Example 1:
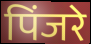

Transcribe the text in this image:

पिंजरे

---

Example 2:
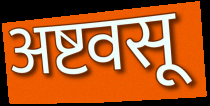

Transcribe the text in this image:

अष्टवसू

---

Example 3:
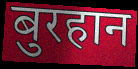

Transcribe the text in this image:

बुरहान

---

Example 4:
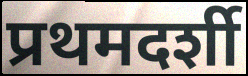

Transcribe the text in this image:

प्रथमदर्शी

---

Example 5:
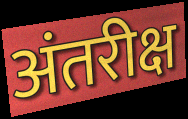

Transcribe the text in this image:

अंतरीक्ष